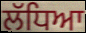
ਲੱਧਿਆ